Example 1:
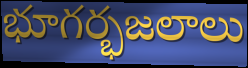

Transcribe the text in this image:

భూగర్భజలాలు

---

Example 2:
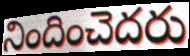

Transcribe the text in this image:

నిందించెదరు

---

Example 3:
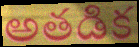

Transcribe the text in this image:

అతడిక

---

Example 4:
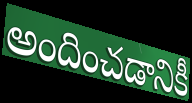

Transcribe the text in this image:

అందించడానికీ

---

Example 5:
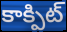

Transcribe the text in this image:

కాక్పిట్